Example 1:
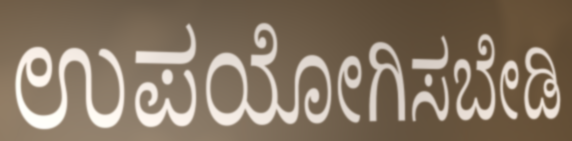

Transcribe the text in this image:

ಉಪಯೋಗಿಸಬೇಡಿ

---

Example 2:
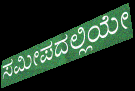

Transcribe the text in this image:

ಸಮೀಪದಲ್ಲಿಯೇ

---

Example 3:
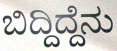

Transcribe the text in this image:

ಬಿದ್ದಿದ್ದೆನು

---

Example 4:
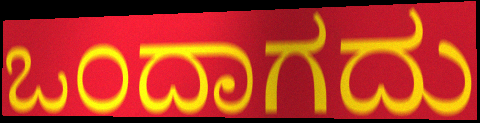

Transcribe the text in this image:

ಒಂದಾಗದು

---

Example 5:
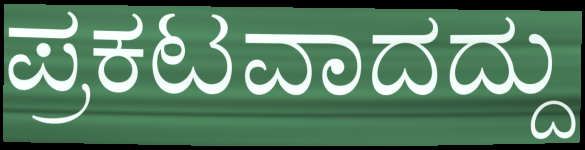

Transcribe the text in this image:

ಪ್ರಕಟವಾದದ್ದು